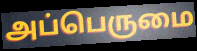
அப்பெருமை